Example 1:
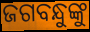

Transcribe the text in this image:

ଜଗବନ୍ଧୁଙ୍କୁ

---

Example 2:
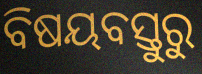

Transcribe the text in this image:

ବିଷୟବସ୍ତୁରୁ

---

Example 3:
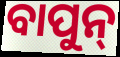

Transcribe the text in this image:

ବାପୁନ୍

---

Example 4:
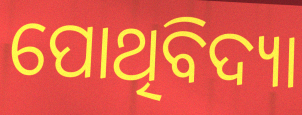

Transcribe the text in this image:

ପୋଥିବିଦ୍ୟା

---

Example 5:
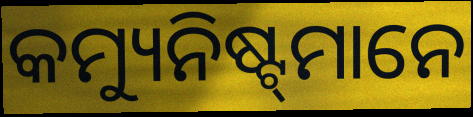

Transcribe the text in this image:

କମ୍ୟୁନିଷ୍ଟ୍‌ମାନେ